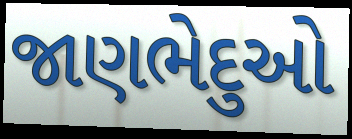
જાણભેદુઓ